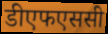
डीएफएससी